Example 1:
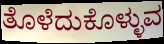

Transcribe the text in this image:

ತೊಳೆದುಕೊಳ್ಳುವ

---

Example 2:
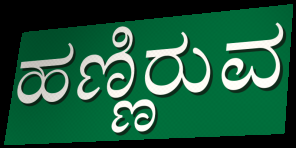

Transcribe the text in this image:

ಹಣ್ಣಿರುವ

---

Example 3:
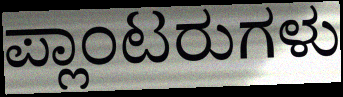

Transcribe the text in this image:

ಪ್ಲಾಂಟರುಗಳು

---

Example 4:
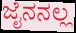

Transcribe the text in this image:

ಜೈನನಲ್ಲ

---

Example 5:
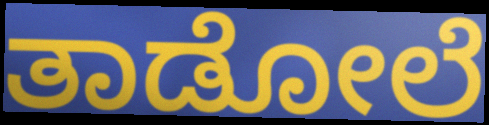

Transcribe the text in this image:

ತಾಡೋಲೆ